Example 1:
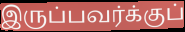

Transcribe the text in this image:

இருப்பவர்க்குப்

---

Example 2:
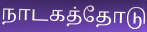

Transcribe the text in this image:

நாடகத்தோடு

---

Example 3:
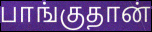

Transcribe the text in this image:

பாங்குதான்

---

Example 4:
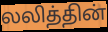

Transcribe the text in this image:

லலித்தின்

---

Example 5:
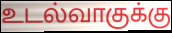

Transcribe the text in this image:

உடல்வாகுக்கு